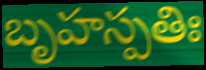
బృహస్పతిః